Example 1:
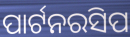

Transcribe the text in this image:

ପାର୍ଟନରସିପ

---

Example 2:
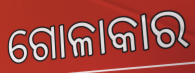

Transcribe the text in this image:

ଗୋଳାକାର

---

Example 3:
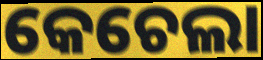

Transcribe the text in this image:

କେଚେଲା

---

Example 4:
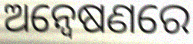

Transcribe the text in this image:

ଅନ୍ବେଷଣରେ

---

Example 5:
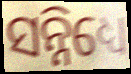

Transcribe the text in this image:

ସନ୍ନିଧ୍ୟେ